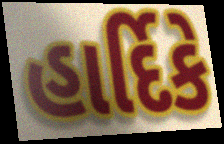
હાર્દિકે